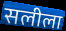
सलीला